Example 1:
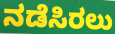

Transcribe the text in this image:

ನಡೆಸಿರಲು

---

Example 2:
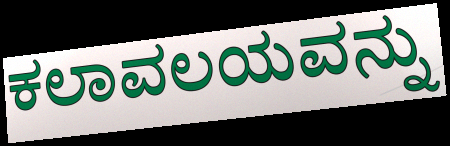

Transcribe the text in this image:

ಕಲಾವಲಯವನ್ನು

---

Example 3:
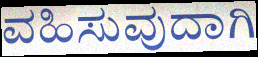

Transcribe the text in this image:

ವಹಿಸುವುದಾಗಿ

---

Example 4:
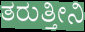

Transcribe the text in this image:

ತರುತ್ತೀನಿ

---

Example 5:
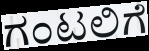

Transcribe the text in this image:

ಗಂಟಲಿಗೆ